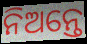
ନିଅନ୍ତେ